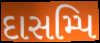
દાસમ્પિ